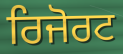
ਰਿਜੋਰਟ